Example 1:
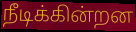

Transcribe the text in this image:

நீடிக்கின்றன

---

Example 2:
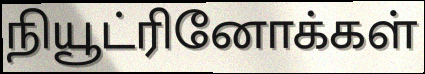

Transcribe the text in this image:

நியூட்ரினோக்கள்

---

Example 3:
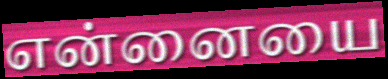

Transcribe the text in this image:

என்னையை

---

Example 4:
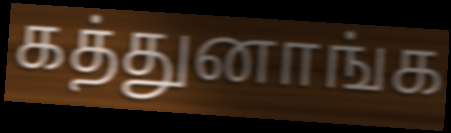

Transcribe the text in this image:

கத்துனாங்க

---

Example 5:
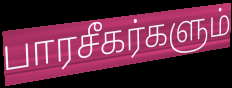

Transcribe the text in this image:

பாரசீகர்களும்